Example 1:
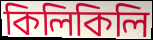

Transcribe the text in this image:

কিলিকিলি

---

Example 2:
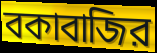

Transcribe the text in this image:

বকাবাজির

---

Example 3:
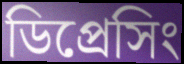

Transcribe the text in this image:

ডিপ্রেসিং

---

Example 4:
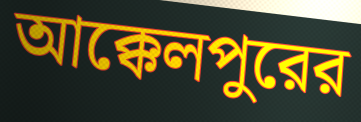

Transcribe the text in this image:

আক্কেলপুরের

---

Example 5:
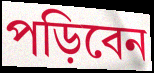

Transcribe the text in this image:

পড়িবেন